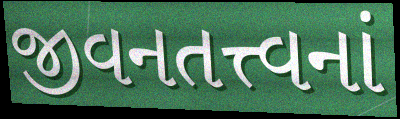
જીવનતત્ત્વનાં